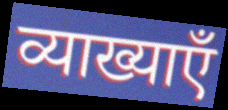
व्याख्याएँ